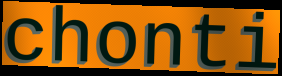
chonti